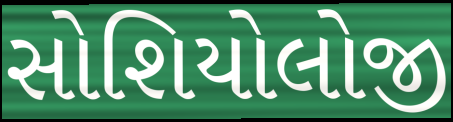
સોશિયોલોજી